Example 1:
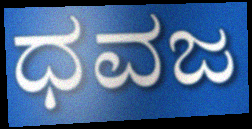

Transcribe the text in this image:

ಧವಜ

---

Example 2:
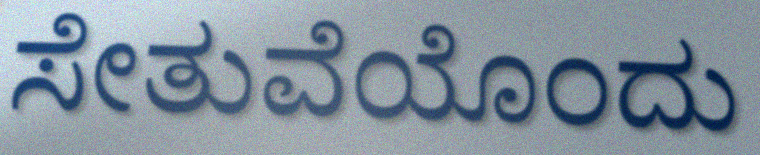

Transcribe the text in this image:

ಸೇತುವೆಯೊಂದು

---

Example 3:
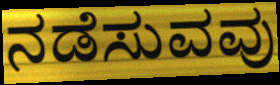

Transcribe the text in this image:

ನಡೆಸುವವು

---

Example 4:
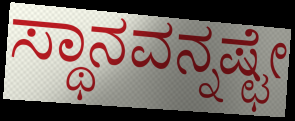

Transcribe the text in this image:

ಸ್ಥಾನವನ್ನಷ್ಟೇ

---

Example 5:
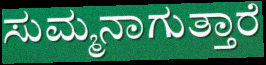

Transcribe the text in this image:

ಸುಮ್ಮನಾಗುತ್ತಾರೆ